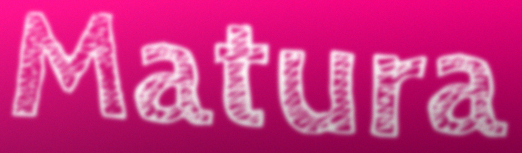
Matura